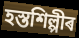
হস্তশিল্পীৰ